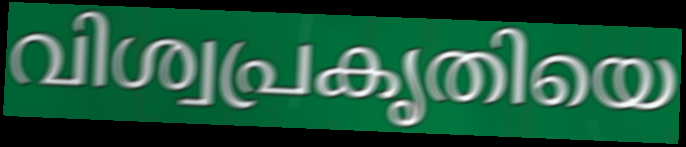
വിശ്വപ്രകൃതിയെ